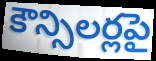
కౌన్సిలర్లపై